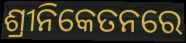
ଶ୍ରୀନିକେତନରେ